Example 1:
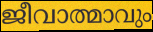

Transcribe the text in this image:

ജീവാത്മാവും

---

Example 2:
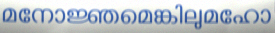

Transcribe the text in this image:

മനോജ്ഞമെങ്കിലുമഹോ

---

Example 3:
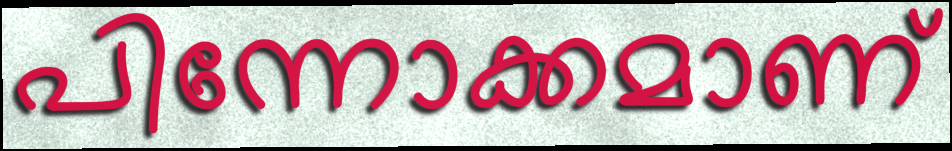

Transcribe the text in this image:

പിന്നോക്കമാണ്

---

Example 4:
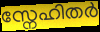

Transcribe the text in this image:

സ്നേഹിതർ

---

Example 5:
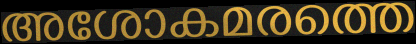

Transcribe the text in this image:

അശോകമരത്തെ